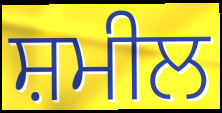
ਸ਼ਮੀਲ